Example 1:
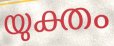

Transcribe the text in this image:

യുക്തം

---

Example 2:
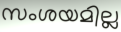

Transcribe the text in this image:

സംശയമില്ല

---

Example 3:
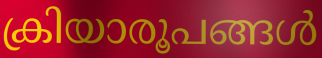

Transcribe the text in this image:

ക്രിയാരൂപങ്ങൾ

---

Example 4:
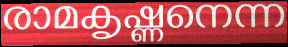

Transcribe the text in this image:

രാമകൃഷ്ണനെന്ന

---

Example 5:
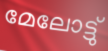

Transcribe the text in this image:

മേലോട്ടു്